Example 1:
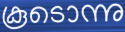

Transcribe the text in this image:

കൂടൊന്നു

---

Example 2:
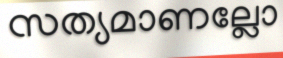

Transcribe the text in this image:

സത്യമാണല്ലോ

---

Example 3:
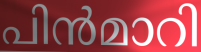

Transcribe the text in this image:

പിൻമാറി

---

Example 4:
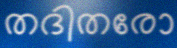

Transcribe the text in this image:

തദിതരോ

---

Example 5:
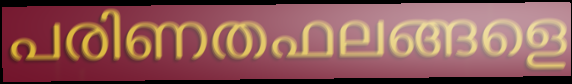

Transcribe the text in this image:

പരിണതഫലങ്ങളെ